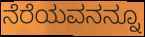
ನೆರೆಯವನನ್ನೂ